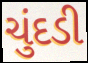
ચુંદડી